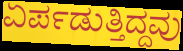
ಏರ್ಪಡುತ್ತಿದ್ದವು